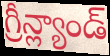
గ్రీన్ల్యాండ్